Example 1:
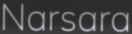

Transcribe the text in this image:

Narsara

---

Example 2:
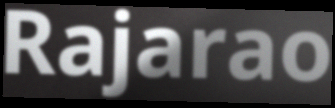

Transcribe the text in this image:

Rajarao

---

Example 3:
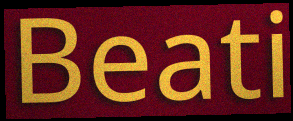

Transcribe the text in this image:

Beati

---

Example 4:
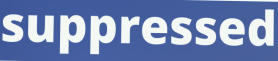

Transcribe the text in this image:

suppressed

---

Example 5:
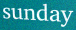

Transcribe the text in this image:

sunday